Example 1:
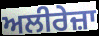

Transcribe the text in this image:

ਅਲੀਰੇਜ਼ਾ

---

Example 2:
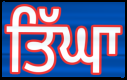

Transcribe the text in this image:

ਤਿੱਘਾ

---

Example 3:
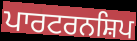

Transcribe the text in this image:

ਪਾਰਟਰਨਸ਼ਿਪ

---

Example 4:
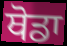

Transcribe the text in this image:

ਥੋਡਾ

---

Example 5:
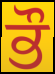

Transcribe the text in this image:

ਭੌ